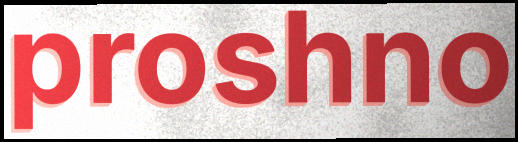
proshno